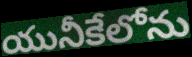
యునీకేలోను